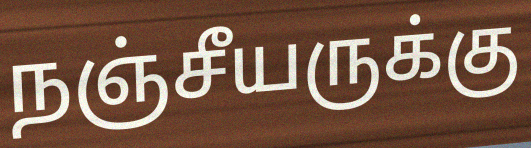
நஞ்சீயருக்கு